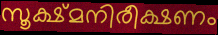
സൂക്ഷ്മനിരീക്ഷണം